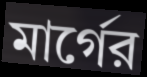
মার্গের